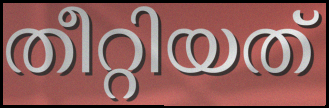
തീറ്റിയത്